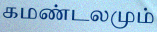
கமண்டலமும்